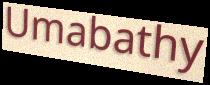
Umabathy